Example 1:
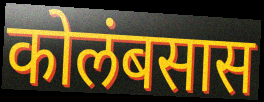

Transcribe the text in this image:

कोलंबसास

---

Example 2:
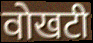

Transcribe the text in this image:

वोखटी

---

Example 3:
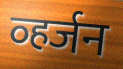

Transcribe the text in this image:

व्हर्जन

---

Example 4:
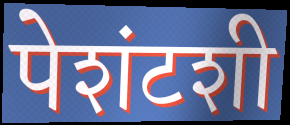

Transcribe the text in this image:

पेशंटशी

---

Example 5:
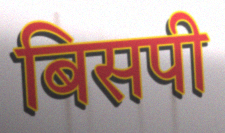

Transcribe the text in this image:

बिसपी